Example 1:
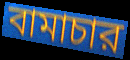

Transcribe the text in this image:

বামাচার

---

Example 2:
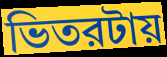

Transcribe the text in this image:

ভিতরটায়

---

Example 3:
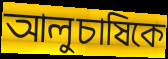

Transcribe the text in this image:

আলুচাষিকে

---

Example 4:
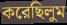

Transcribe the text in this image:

করেছিলুম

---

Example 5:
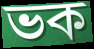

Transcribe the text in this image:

ভক